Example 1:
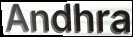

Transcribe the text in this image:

Andhra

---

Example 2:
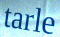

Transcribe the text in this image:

tarle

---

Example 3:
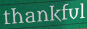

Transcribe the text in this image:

thankful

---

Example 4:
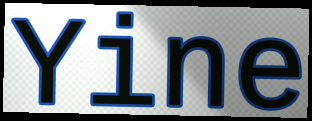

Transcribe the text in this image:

Yine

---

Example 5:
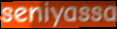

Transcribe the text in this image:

seniyassa